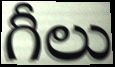
గీలు